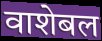
वाशेबल